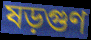
ষড়গুণ